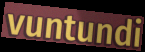
vuntundi